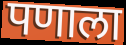
पणाला